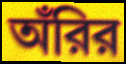
অঁরির